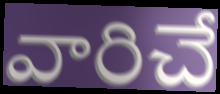
వారిచే